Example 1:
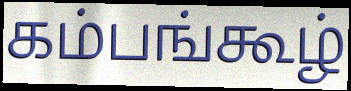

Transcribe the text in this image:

கம்பங்கூழ்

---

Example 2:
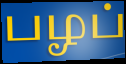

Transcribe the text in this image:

பழப்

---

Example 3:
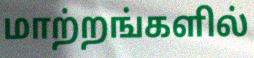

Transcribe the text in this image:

மாற்றங்களில்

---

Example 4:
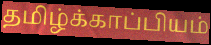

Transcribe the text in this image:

தமிழ்க்காப்பியம்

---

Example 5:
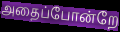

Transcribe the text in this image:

அதைப்போன்றே